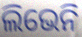
ଲିଭେନି